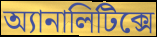
অ্যানালিটিক্সে